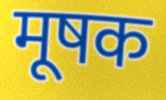
मूषक